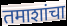
तमाशांचा